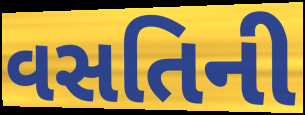
વસતિની